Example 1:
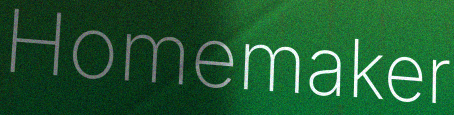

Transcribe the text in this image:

Homemaker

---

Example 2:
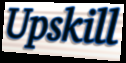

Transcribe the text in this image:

Upskill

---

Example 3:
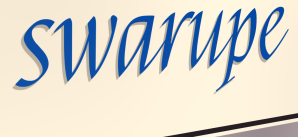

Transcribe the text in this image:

swarupe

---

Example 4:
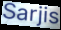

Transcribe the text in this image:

Sarjis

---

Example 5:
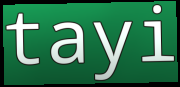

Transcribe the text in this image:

tayi